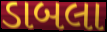
ડાબલા